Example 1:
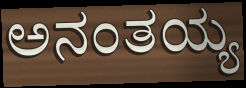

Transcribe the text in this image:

ಅನಂತಯ್ಯ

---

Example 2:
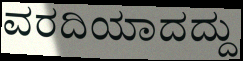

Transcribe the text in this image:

ವರದಿಯಾದದ್ದು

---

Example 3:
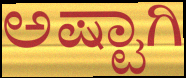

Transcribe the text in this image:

ಅಷ್ಟಾಗಿ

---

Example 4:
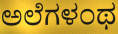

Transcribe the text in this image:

ಅಲೆಗಳಂಥ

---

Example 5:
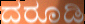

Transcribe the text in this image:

ದರೂಡಿ